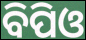
ବିପିଓ